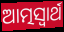
ଆତ୍ମସ୍ଵାର୍ଥ